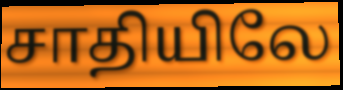
சாதியிலே